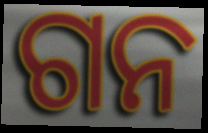
ଗନ